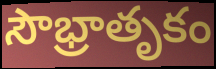
సౌభ్రాతృకం